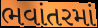
ભવાંતરમાં